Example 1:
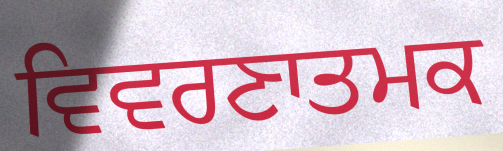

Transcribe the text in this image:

ਵਿਵਰਣਾਤਮਕ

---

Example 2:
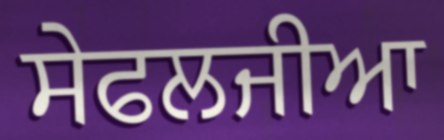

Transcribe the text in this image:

ਸੇਫਲਜੀਆ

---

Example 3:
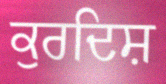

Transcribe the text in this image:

ਕੁਰਦਿਸ਼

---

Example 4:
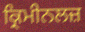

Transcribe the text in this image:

ਕ੍ਰਿਮੀਨਲਜ਼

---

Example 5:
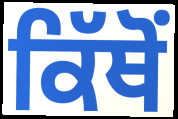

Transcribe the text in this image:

ਕਿੱਥੋੰ